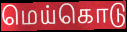
மெய்கொடு